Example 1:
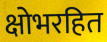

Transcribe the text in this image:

क्षोभरहित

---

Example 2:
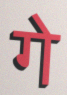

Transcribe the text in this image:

गे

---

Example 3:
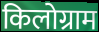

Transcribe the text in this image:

किलोग्राम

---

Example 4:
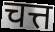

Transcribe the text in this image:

चत्त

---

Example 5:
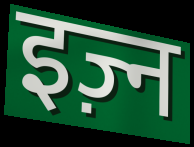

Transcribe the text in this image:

इज़्न